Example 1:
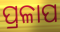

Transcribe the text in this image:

ପ୍ରଳାପ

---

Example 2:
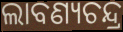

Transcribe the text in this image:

ଲାବଣ୍ୟଚନ୍ଦ୍ର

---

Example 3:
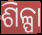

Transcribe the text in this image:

ଶିଳ୍ପା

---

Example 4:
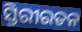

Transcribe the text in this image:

ସ୍ତିରୀରତନ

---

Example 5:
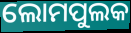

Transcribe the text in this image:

ଲୋମପୁଲକ